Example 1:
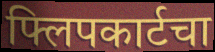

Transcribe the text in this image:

फ्लिपकार्टचा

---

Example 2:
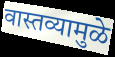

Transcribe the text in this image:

वास्तव्यामुळे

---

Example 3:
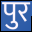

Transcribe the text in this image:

पुर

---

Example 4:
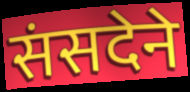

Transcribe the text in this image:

संसदेने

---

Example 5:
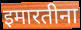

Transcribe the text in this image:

इमारतीना